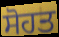
ਸੋਹਤ